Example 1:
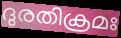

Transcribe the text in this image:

ദുരതിക്രമഃ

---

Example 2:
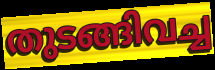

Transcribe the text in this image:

തുടങ്ങിവച്ച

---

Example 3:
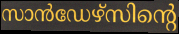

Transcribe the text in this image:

സാൻഡേഴ്സിന്റെ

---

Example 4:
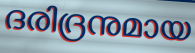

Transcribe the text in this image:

ദരിദ്രനുമായ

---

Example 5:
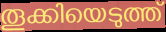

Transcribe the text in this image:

തൂക്കിയെടുത്ത്